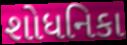
શોધનિકા